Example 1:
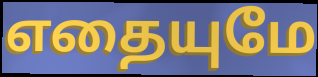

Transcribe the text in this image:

எதையுமே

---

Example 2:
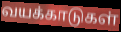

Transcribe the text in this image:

வயக்காடுகள்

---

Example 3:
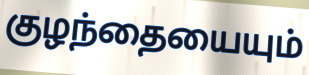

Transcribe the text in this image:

குழந்தையையும்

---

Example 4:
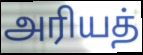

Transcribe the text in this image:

அரியத்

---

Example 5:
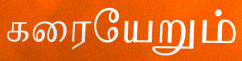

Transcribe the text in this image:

கரையேறும்